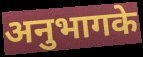
अनुभागके